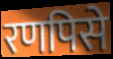
रणपिसे